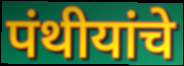
पंथीयांचे